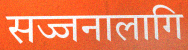
सज्जनालागि